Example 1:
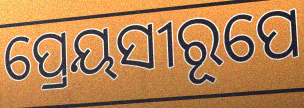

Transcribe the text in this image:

ପ୍ରେୟସୀରୂପେ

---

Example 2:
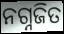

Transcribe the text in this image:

ନଗ୍ନଜିତ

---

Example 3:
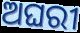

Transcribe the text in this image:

ଅଘରୀ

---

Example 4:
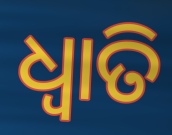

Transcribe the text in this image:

ଧ୍ବାତି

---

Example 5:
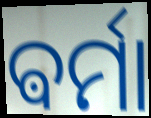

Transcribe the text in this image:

ଵର୍ମା